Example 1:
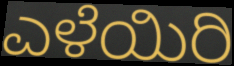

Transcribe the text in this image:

ಎಳೆಯಿರಿ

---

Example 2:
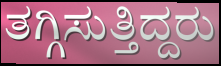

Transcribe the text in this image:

ತಗ್ಗಿಸುತ್ತಿದ್ದರು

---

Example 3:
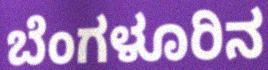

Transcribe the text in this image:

ಬೆಂಗಳೂರಿನ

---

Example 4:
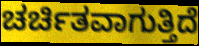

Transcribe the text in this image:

ಚರ್ಚಿತವಾಗುತ್ತಿದೆ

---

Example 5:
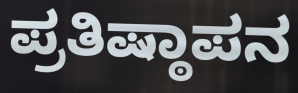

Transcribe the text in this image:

ಪ್ರತಿಷ್ಠಾಪನ